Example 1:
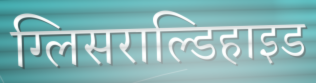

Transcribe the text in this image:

ग्लिसराल्डिहाइड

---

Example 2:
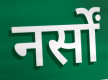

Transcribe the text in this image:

नर्सों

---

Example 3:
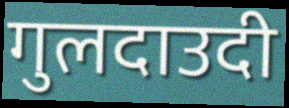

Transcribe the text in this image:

गुलदाउदी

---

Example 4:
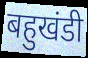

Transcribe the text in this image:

बहुखंडी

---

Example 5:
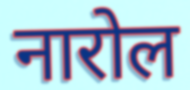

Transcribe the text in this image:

नारोल